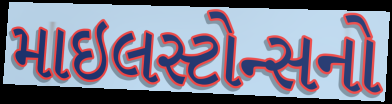
માઇલસ્ટોન્સનો